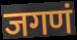
जगणं